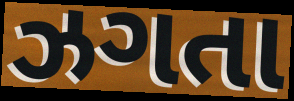
ઝગતા